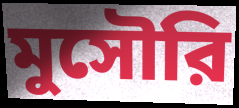
মুসৌরি